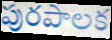
పురపాలక